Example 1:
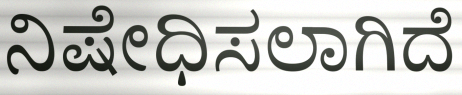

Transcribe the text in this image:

ನಿಷೇಧಿಸಲಾಗಿದೆ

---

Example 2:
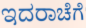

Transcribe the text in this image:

ಇದರಾಚೆಗೆ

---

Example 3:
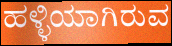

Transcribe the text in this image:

ಹಳ್ಳಿಯಾಗಿರುವ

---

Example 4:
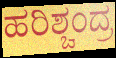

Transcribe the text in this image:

ಹರಿಶ್ಚಂದ್ರ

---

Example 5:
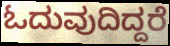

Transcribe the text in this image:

ಓದುವುದಿದ್ದರೆ